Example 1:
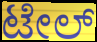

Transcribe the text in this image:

ಟೇಲ್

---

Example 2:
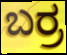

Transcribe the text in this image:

ಬರ್ರ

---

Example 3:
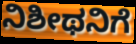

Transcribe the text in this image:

ನಿಶೀಥನಿಗೆ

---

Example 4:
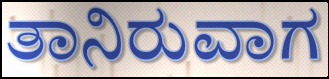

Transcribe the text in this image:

ತಾನಿರುವಾಗ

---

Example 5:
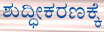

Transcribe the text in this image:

ಶುದ್ಧೀಕರಣಕ್ಕೆ